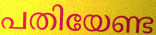
പതിയേണ്ട